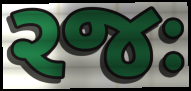
રજઃ